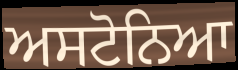
ਅਸਟੋਨਿਆ